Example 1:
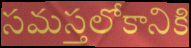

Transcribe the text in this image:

సమస్తలోకానికి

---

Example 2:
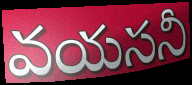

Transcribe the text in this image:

వయసనీ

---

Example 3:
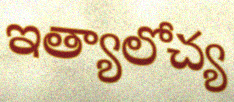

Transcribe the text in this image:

ఇత్యాలోచ్య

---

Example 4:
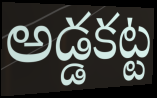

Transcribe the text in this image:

అడ్డకట్ట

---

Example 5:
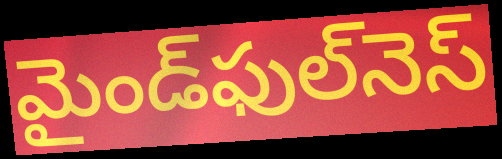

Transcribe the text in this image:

మైండ్‌ఫుల్‌నెస్